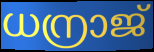
ധന്രാജ്